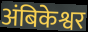
अंबिकेश्वर